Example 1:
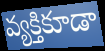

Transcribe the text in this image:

వ్యక్తికూడా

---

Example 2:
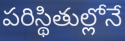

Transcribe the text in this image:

పరిస్థితుల్లోనే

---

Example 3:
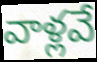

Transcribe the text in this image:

వాళ్లవే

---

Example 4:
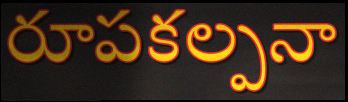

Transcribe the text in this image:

రూపకల్పనా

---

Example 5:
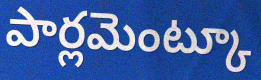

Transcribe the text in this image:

పార్లమెంట్కూ